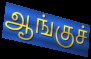
ஆங்குச்